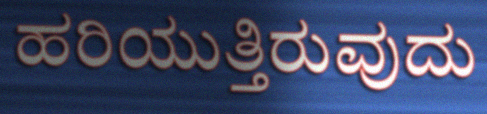
ಹರಿಯುತ್ತಿರುವುದು